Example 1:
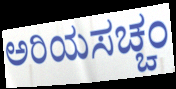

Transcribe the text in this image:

ಅರಿಯಸಚ್ಚಂ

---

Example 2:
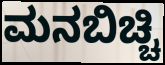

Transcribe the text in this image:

ಮನಬಿಚ್ಚಿ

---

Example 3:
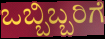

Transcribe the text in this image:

ಒಬ್ಬಿಬ್ಬರಿಗೆ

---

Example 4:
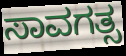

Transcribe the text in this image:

ಸಾವಗತ್ಸ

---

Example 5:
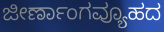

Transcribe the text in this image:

ಜೀರ್ಣಾಂಗವ್ಯೂಹದ